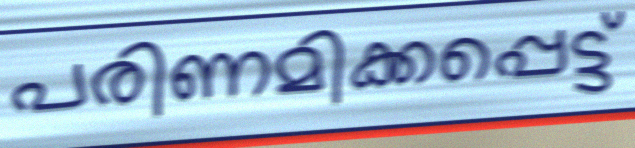
പരിണമിക്കപ്പെട്ട്